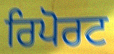
ਰਿਪੋਰਟ